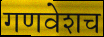
गणवेशच